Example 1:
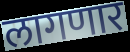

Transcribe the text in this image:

लागणार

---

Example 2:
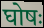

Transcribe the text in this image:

घोषः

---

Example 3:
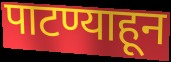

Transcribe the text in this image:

पाटण्याहून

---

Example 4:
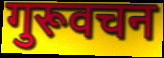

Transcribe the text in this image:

गुरूवचन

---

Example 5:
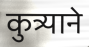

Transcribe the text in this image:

कुत्र्याने